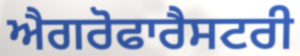
ਐਗਰੋਫਾਰੈਸਟਰੀ